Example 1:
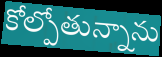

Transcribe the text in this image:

కోల్పోతున్నాను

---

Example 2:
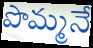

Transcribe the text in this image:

పొమ్మనే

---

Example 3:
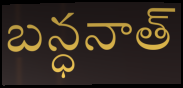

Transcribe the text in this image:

బన్ధనాత్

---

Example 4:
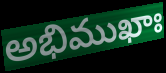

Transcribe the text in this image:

అభిముఖాః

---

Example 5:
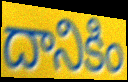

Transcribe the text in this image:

దానికిం